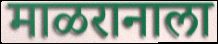
माळरानाला